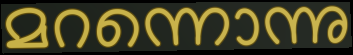
മറന്നൊന്നു